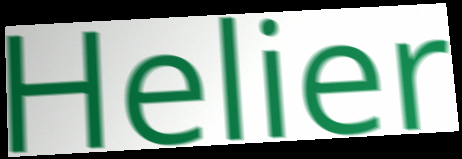
Helier